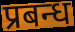
प्रबन्ध